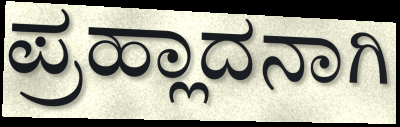
ಪ್ರಹ್ಲಾದನಾಗಿ